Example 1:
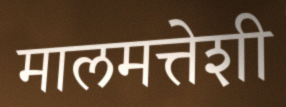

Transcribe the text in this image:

मालमत्तेशी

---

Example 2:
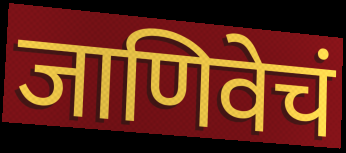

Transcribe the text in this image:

जाणिवेचं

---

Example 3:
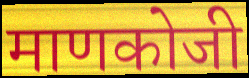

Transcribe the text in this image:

माणकोजी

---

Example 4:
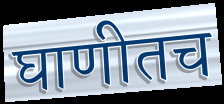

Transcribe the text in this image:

घाणीतच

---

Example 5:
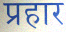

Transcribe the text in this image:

प्रहार